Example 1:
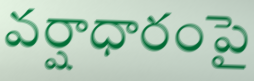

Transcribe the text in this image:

వర్షాధారంపై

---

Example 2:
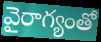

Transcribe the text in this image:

వైరాగ్యంతో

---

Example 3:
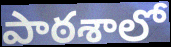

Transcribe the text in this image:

పాఠశాలో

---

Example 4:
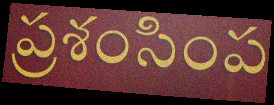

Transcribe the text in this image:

ప్రశంసింప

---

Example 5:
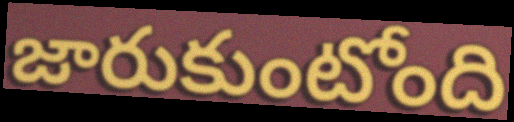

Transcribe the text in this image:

జారుకుంటోంది